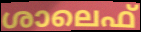
ശാലെഫ്